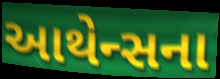
આથેન્સના